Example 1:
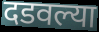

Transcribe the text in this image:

दडवल्या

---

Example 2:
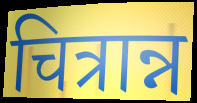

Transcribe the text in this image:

चित्रान्न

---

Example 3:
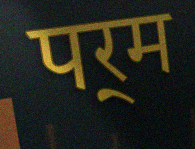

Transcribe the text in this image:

पर्म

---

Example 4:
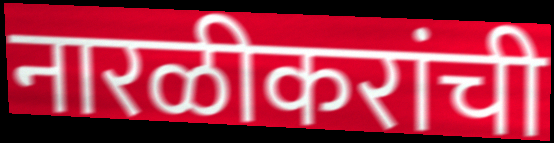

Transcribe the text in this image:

नारळीकरांची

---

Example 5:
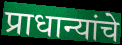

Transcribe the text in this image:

प्राधान्यांचे